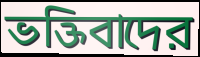
ভক্তিবাদের